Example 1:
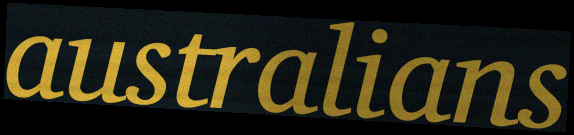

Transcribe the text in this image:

australians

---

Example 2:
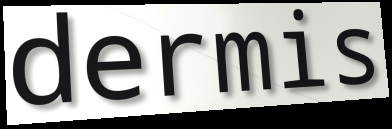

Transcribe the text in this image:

dermis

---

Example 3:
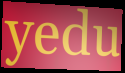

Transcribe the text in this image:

yedu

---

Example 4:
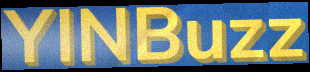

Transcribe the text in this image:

YINBuzz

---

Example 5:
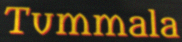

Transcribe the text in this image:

Tummala